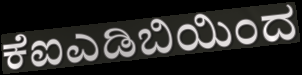
ಕೆಐಎಡಿಬಿಯಿಂದ